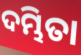
ଦମ୍ଭିତା